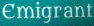
Emigrant